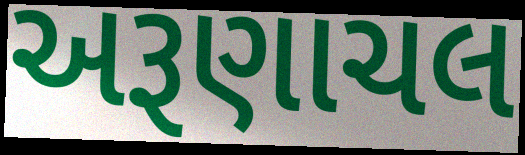
અરૂણાચલ